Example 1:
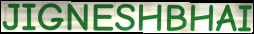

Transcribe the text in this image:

JIGNESHBHAI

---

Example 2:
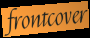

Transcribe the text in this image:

frontcover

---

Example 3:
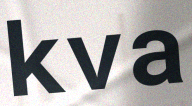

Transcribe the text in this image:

kva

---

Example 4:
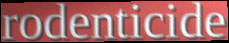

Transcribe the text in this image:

rodenticide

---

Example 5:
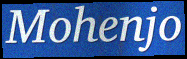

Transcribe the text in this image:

Mohenjo